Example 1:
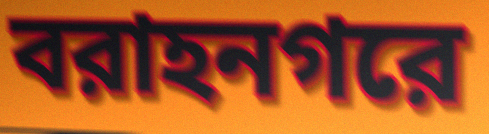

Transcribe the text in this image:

বরাহনগরে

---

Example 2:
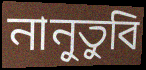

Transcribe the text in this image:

নানুতুবি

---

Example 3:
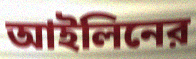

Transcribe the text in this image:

আইলিনের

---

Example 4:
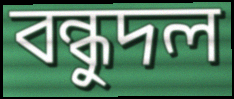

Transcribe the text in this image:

বন্ধুদল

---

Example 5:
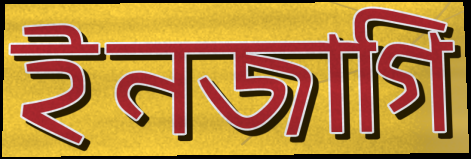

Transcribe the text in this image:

ইনজাগি